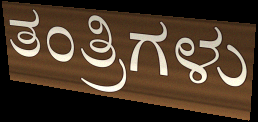
ತಂತ್ರಿಗಳು